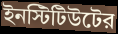
ইনস্টিটিউটের